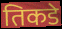
तिकडे